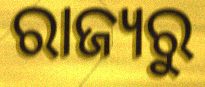
ରାଜ୍ୟରୁ